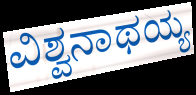
ವಿಶ್ವನಾಥಯ್ಯ